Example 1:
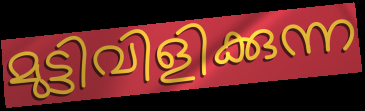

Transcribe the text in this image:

മുട്ടിവിളിക്കുന്ന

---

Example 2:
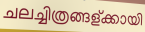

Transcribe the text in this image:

ചലച്ചിത്രങ്ങള്ക്കായി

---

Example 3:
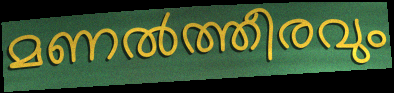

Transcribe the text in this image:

മണൽത്തീരവും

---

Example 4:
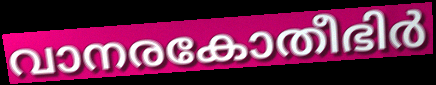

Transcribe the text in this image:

വാനരകോതീഭിർ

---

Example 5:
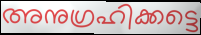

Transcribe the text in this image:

അനുഗ്രഹിക്കട്ടെ